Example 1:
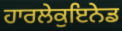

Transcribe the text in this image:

ਹਾਰਲੇਕੁਇਨੇਡ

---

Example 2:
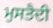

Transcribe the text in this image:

ਮੁਸਤੈਦੀ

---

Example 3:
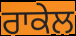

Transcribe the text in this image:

ਰਾਕੇਲ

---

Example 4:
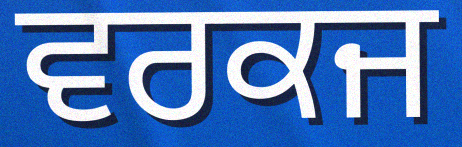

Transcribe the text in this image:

ਵਰਕਜ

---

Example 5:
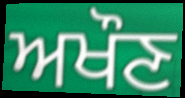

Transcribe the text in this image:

ਅਖੌਣ